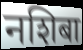
नशिबा